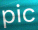
pic